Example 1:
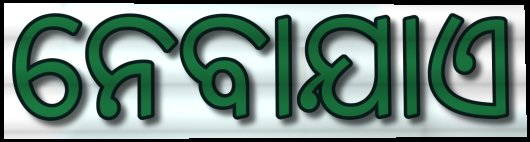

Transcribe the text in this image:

ନେବାଯାଏ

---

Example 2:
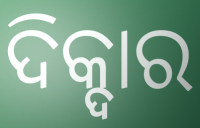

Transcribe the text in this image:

ଦିକ୍ଦାର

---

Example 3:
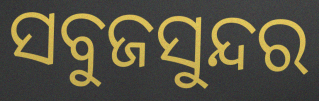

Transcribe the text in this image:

ସବୁଜସୁନ୍ଦର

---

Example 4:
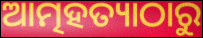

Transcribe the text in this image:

ଆତ୍ମହତ୍ୟାଠାରୁ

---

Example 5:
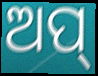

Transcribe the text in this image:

ଅପ୍